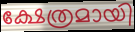
ക്ഷേത്രമായി